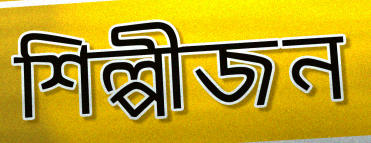
শিল্পীজন